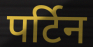
पर्टिन